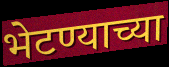
भेटण्याच्या